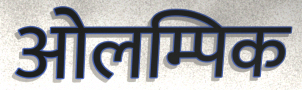
ओलम्पिक